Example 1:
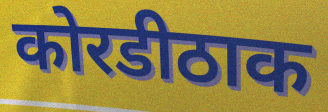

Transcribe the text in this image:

कोरडीठाक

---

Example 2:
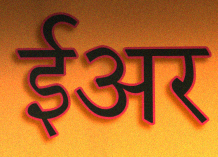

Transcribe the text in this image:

ईअर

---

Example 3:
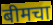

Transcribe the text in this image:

बीमचा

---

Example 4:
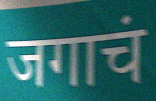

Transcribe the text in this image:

जगाचं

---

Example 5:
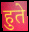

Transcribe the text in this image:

हुते